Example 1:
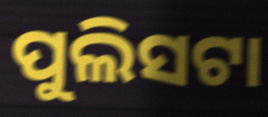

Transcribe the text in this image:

ପୁଲିସଟା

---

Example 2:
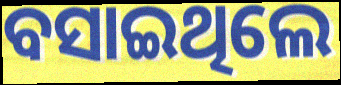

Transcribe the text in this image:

ବସାଇଥିଲେ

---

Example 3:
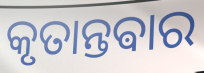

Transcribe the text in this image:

କୃତାନ୍ତଵାର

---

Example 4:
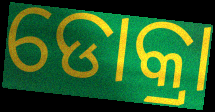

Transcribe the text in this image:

ଡୋକ୍ରା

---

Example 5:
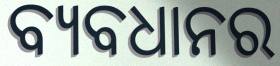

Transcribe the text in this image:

ବ୍ୟବଧାନର